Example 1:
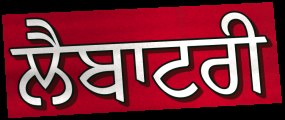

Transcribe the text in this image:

ਲੈਬਾਟਰੀ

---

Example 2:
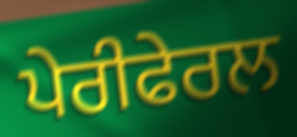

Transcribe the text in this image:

ਪੇਰੀਫੇਰਲ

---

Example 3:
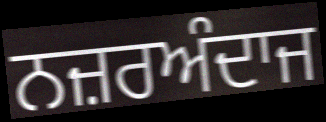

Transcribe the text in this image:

ਨਜ਼ਰਅੰਦਾਜ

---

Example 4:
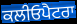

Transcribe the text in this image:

ਕਲੀਓਪੈਟਰਾ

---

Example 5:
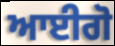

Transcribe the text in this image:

ਆਈਗੋ